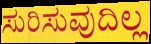
ಸುರಿಸುವುದಿಲ್ಲ